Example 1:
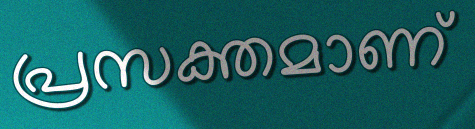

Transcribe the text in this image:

പ്രസക്തമാണ്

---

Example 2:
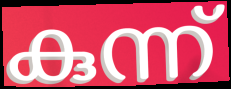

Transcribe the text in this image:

കുന്ന്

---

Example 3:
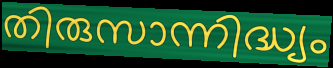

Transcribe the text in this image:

തിരുസാന്നിദ്ധ്യം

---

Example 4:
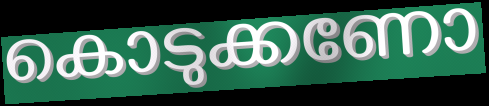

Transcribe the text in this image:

കൊടുക്കണോ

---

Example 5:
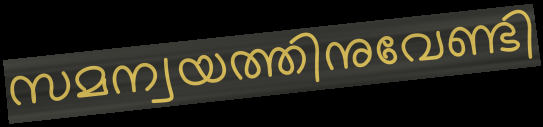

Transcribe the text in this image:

സമന്വയത്തിനുവേണ്ടി